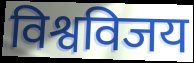
विश्वविजय